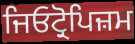
ਜਿਓਟ੍ਰੋਪਿਜ਼ਮ